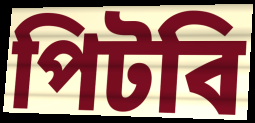
পিটবি